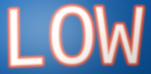
LOW